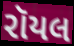
રૉયલ